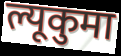
ल्यूकुमा